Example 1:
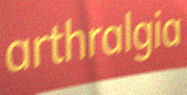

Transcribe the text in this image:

arthralgia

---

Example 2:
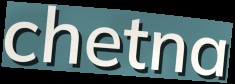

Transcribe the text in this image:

chetna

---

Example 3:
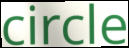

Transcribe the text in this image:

circle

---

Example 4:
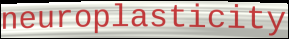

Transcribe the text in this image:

neuroplasticity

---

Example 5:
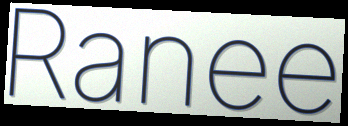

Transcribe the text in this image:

Ranee